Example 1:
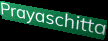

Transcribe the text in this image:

Prayaschitta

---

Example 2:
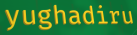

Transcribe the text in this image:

yughadiru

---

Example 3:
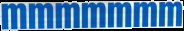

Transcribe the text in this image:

mmmmmmm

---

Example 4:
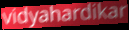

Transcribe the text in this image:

vidyahardikar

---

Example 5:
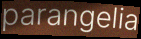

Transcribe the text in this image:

parangelia